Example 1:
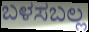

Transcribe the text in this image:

ಬಳಸಬಲ್ಲ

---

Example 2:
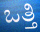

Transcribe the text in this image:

ಒತ್ತಿ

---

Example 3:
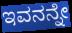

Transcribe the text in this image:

ಇವನನ್ನೇ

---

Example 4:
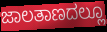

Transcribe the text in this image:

ಜಾಲತಾಣದಲ್ಲೂ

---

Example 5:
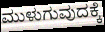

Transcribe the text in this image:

ಮುಳುಗುವುದಕ್ಕೆ